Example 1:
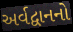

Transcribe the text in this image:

અર્વદ્વાનનો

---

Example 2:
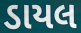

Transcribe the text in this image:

ડાયલ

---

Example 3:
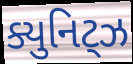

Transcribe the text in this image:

ક્યુનિટ્ઝ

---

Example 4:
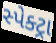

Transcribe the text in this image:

સ્પેક્ટ્રા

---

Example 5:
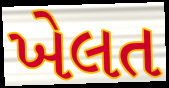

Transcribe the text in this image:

ખેલત